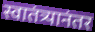
स्वातंत्र्यानंतर